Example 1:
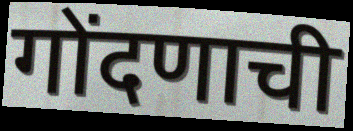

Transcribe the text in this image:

गोंदणाची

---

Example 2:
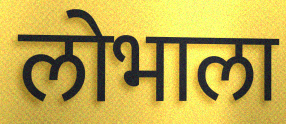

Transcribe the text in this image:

लोभाला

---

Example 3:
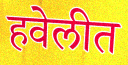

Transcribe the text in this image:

हवेलीत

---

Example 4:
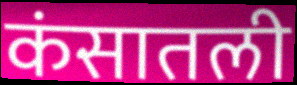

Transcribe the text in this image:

कंसातली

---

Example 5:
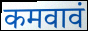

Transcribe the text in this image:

कमवावं